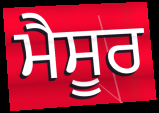
ਮੈਸੂਰ